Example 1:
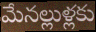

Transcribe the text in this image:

మేనల్లుళ్లకు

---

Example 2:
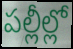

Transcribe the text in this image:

పల్లీల్లో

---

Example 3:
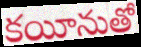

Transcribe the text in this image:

కయీనుతో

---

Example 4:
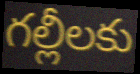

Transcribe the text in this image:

గల్లీలకు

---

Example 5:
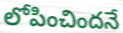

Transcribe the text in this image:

లోపించిందనే